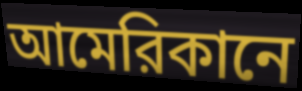
আমেরিকানে